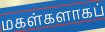
மகள்களாகப்